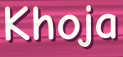
Khoja